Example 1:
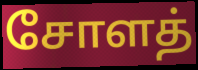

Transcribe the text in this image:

சோளத்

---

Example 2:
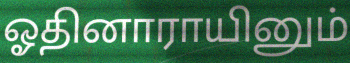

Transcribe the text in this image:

ஓதினாராயினும்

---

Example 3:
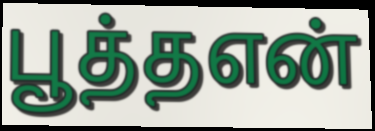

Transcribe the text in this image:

பூத்தஎன்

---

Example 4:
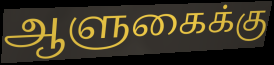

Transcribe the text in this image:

ஆளுகைக்கு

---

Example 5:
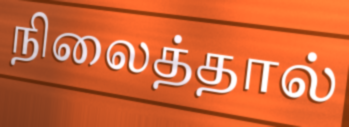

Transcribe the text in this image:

நிலைத்தால்